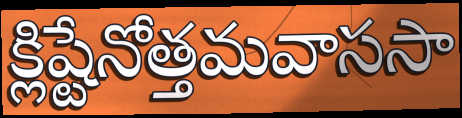
క్లిష్టేనోత్తమవాససా